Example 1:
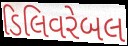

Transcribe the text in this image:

ડિલિવરેબલ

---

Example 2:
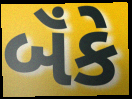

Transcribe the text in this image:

બૅંકે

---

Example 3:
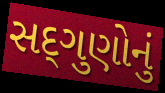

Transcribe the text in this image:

સદ્‌ગુણોનું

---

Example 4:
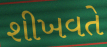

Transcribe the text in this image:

શીખવતે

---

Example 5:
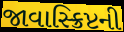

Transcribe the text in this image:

જાવાસ્ક્રિપ્ટની